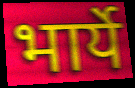
भार्ये